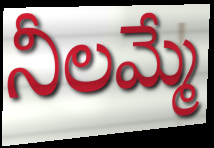
నీలమ్మే